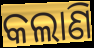
କଲାଣି